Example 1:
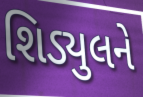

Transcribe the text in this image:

શિડ્યુલને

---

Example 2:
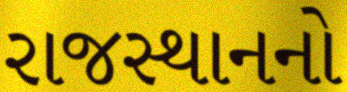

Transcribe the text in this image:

રાજસ્થાનનો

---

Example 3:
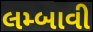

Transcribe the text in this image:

લમ્બાવી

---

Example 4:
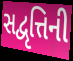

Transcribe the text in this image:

સદ્વૃત્તિની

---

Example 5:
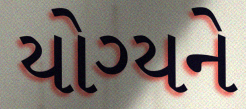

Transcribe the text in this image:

યોગ્યને